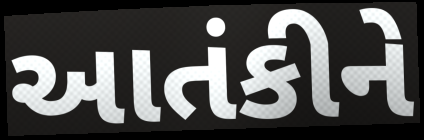
આતંકીને